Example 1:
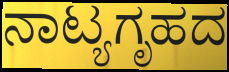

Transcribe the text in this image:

ನಾಟ್ಯಗೃಹದ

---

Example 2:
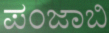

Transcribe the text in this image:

ಪಂಜಾಬಿ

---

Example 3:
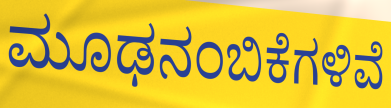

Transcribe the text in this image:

ಮೂಢನಂಬಿಕೆಗಳಿವೆ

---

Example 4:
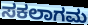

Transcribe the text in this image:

ಸಕಲಾಗಮ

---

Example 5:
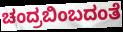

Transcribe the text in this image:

ಚಂದ್ರಬಿಂಬದಂತೆ